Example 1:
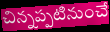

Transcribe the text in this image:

చిన్నప్పటినుంచే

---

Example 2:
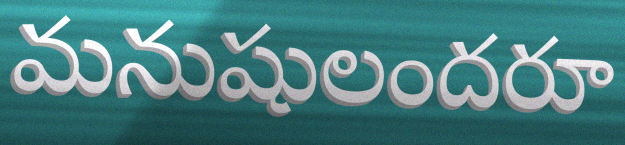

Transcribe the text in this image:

మనుషులందరూ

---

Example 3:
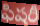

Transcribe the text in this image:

ఫిషరీ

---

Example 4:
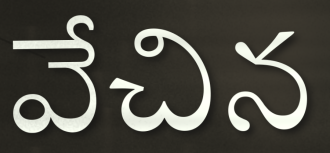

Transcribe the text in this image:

వేచిన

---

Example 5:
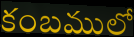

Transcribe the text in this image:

కంబములో